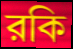
রকি